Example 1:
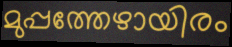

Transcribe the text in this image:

മുപ്പത്തേഴായിരം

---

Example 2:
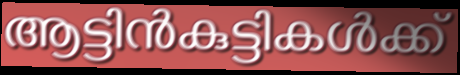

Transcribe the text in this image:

ആട്ടിൻകുട്ടികൾക്ക്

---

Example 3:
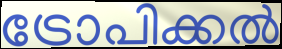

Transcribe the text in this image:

ട്രോപിക്കൽ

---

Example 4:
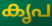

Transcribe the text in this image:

കൃപ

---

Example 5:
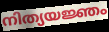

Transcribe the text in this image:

നിത്യയജ്ഞം